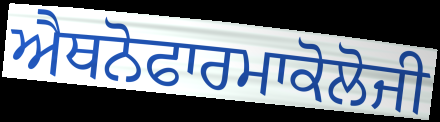
ਐਥਨੋਫਾਰਮਾਕੋਲੋਜੀ